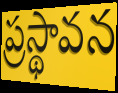
ప్రస్థావన